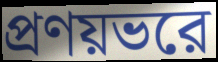
প্রণয়ভরে